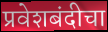
प्रवेशबंदीचा